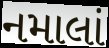
નમાલાં